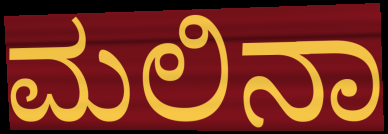
ಮಲಿನಾ